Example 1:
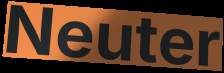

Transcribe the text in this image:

Neuter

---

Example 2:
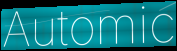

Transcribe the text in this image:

Automic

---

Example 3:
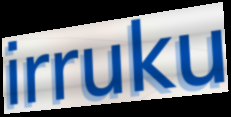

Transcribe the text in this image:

irruku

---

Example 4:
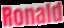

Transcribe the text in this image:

Ronald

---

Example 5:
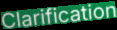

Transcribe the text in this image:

Clarification